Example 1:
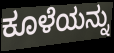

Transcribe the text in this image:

ಕೂಳೆಯನ್ನು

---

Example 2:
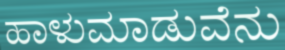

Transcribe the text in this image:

ಹಾಳುಮಾಡುವೆನು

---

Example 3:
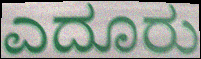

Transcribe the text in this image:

ಎದೂರು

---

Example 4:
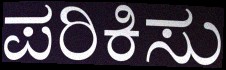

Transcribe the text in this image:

ಪರಿಕಿಸು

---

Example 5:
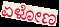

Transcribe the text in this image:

ಏಳೋಣ